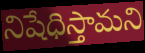
నిషేధిస్తామని